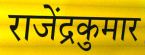
राजेंद्रकुमार